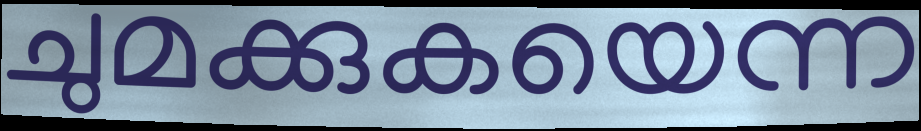
ചുമക്കുകയെന്ന